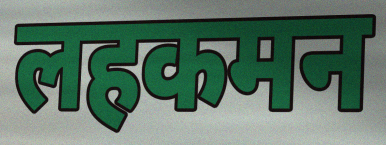
लहकमन